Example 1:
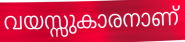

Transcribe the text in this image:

വയസ്സുകാരനാണ്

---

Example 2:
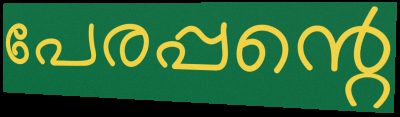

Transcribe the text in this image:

പേരപ്പന്റെ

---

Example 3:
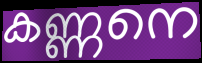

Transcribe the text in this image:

കണ്ണനെ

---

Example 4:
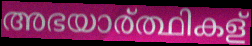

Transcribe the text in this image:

അഭയാര്ത്ഥികള്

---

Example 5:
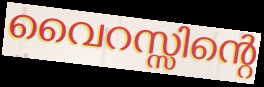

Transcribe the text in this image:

വൈറസ്സിന്റെ